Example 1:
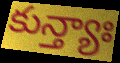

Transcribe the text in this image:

కున్త్యాః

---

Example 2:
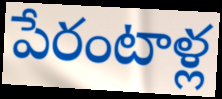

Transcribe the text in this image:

పేరంటాళ్ల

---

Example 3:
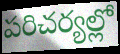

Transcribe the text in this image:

పరిచర్యల్లో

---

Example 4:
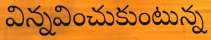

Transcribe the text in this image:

విన్నవించుకుంటున్న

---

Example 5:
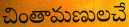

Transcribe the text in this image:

చింతామణులచే